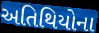
અતિથિયોના